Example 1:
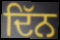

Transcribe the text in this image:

ਦਿੱਨ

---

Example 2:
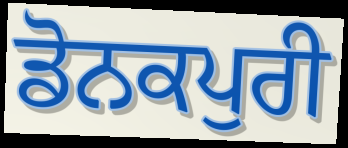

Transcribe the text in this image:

ਡੋਨਕਪੁਰੀ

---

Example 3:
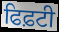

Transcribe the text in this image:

ਫਿਫ਼ਟੀ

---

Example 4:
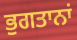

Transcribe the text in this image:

ਭੁਗਤਾਨਾਂ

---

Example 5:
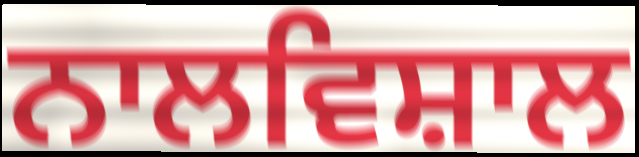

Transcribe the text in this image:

ਨਾਲਵਿਸ਼ਾਲ